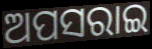
ଅପସରାଇ